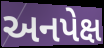
અનપેક્ષ